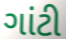
ગાંટી